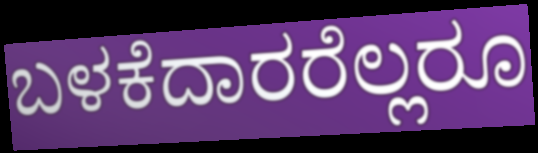
ಬಳಕೆದಾರರೆಲ್ಲರೂ